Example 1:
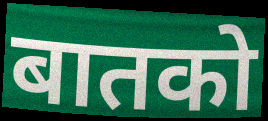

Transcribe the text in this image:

बातको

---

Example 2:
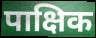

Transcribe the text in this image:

पाक्षिक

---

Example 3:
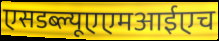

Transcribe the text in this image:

एसडब्ल्यूएएमआईएच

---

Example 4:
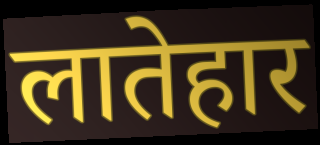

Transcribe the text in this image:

लातेहार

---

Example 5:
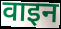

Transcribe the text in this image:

वाइन